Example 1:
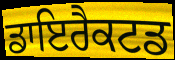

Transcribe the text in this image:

ਡਾਇਰੈਕਟਡ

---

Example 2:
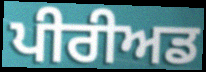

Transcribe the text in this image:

ਪੀਰੀਅਡ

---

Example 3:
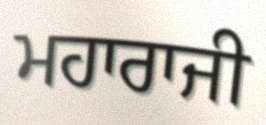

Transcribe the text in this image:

ਮਹਾਰਾਜੀ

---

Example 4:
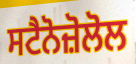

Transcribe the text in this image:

ਸਟੈਨੋਜ਼ੋਲੋਲ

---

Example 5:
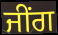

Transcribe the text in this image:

ਜੀਂਗ